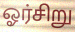
ஓர்சிறு